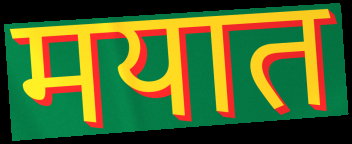
मयात